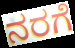
ನರಗೆ